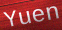
Yuen